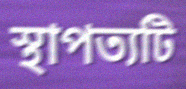
স্থাপত্যটি